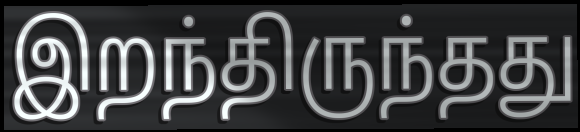
இறந்திருந்தது